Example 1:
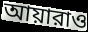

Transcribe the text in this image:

আয়ারাও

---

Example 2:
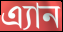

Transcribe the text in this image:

এ্যান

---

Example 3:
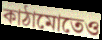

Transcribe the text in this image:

কাঠামোতেও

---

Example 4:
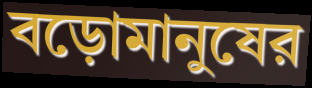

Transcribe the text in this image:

বড়োমানুষের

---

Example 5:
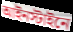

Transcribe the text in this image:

আইনস্টাইনে